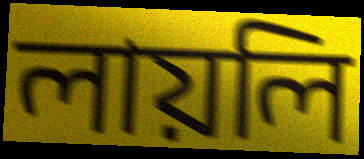
লায়লি